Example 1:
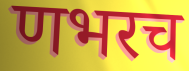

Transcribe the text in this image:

णभरच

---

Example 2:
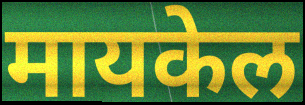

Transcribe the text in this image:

मायकेल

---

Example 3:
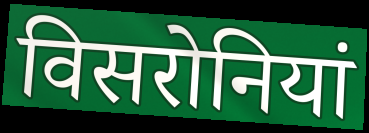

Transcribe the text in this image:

विसरोनियां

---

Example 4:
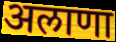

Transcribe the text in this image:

अलाणा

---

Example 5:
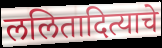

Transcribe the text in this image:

ललितादित्याचे